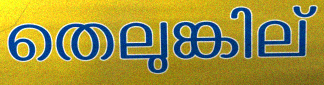
തെലുങ്കില്